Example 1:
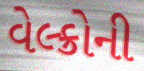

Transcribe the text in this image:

વેલ્ક્રોની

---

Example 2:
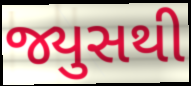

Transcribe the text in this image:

જ્યુસથી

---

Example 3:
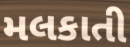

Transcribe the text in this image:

મલકાતી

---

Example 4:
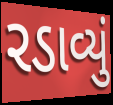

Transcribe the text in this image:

રડાવ્યું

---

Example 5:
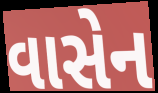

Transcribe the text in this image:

વાસેન